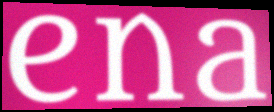
ena